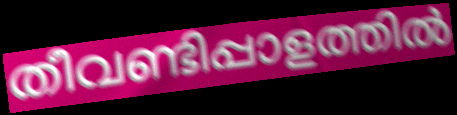
തീവണ്ടിപ്പാളത്തിൽ